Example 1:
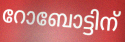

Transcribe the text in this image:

റോബോട്ടിന്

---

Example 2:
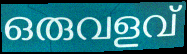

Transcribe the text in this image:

ഒരുവളവ്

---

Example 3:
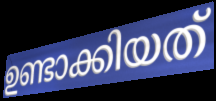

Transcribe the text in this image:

ഉണ്ടാക്കിയത്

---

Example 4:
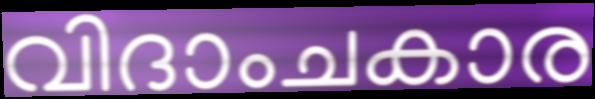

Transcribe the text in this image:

വിദാംചകാര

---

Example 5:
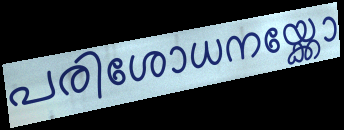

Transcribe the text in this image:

പരിശോധനയ്ക്കോ